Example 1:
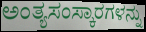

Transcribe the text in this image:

ಅಂತ್ಯಸಂಸ್ಕಾರಗಳನ್ನು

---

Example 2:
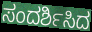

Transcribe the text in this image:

ಸಂದರ್ಶಿಸಿದ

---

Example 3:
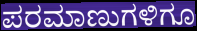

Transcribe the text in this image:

ಪರಮಾಣುಗಳಿಗೂ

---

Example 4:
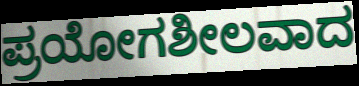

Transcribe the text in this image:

ಪ್ರಯೋಗಶೀಲವಾದ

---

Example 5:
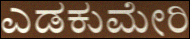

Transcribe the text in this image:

ಎಡಕುಮೇರಿ